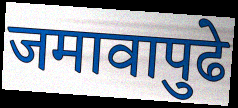
जमावापुढे